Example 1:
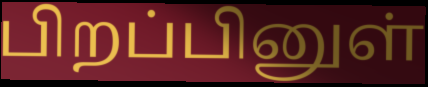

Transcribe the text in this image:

பிறப்பினுள்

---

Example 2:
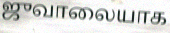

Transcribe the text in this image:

ஜுவாலையாக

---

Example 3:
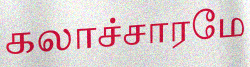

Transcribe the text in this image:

கலாச்சாரமே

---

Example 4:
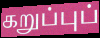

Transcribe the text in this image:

கறுப்புப்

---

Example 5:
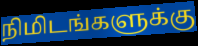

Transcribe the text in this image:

நிமிடங்களுக்கு